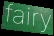
fairy